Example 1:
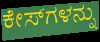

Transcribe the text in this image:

ಕೇಸ್‌ಗಳನ್ನು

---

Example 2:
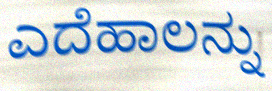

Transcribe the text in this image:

ಎದೆಹಾಲನ್ನು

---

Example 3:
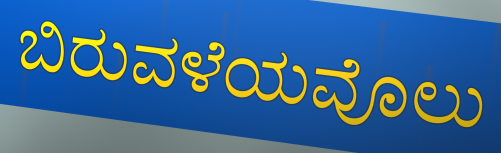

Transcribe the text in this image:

ಬಿರುವಳೆಯವೊಲು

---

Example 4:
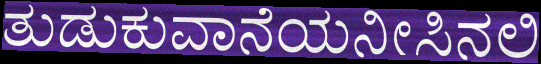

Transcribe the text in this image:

ತುಡುಕುವಾನೆಯನೀಸಿನಲಿ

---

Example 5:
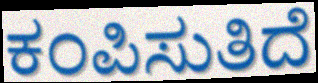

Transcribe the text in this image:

ಕಂಪಿಸುತಿದೆ